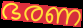
ഭരണ